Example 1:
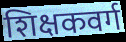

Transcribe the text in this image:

शिक्षकवर्ग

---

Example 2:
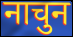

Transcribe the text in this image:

नाचुन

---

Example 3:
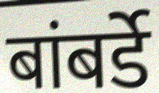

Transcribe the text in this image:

बांबर्डे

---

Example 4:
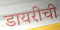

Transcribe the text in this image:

डायरीची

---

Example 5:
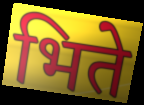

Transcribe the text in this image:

भिते